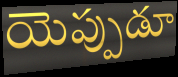
యెప్పుడూ